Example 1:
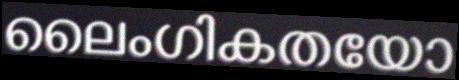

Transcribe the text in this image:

ലൈംഗികതയോ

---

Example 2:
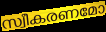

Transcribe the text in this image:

സ്വീകരണമോ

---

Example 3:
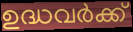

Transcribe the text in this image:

ഉദ്ധവർക്ക്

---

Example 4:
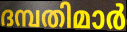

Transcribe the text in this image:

ദമ്പതിമാർ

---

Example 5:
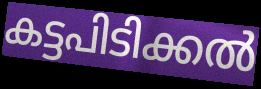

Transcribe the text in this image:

കട്ടപിടിക്കൽ